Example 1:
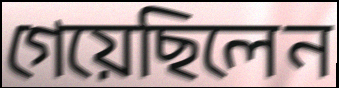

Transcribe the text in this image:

গেয়েছিলেন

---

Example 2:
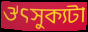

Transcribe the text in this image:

ঔৎসুক্যটা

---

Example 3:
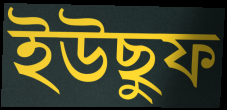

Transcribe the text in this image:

ইউছুফ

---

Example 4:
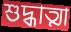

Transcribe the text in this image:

শুদ্ধাত্মা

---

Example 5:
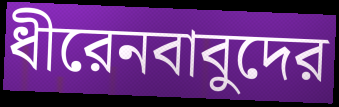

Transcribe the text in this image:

ধীরেনবাবুদের